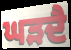
ਘੜਦੈ